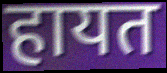
हायत